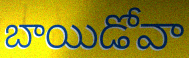
బాయిడోవా